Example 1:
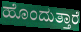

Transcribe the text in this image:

ಹೊಂದುತ್ತಾರೆ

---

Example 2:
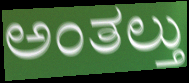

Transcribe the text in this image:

ಅಂತಲ್ತು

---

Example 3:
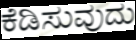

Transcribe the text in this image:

ಕೆಡಿಸುವುದು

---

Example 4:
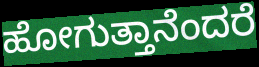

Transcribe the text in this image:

ಹೋಗುತ್ತಾನೆಂದರೆ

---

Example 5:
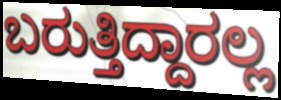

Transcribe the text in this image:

ಬರುತ್ತಿದ್ದಾರಲ್ಲ